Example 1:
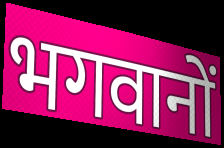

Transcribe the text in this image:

भगवानों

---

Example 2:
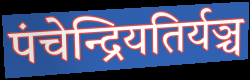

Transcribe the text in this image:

पंचेन्द्रियतिर्यञ्च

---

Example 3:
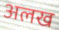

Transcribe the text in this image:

अलख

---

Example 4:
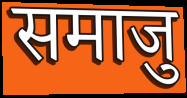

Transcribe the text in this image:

समाजु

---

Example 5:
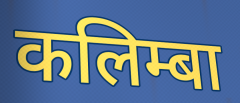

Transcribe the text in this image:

कलिम्बा